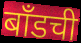
बाँडची